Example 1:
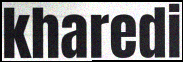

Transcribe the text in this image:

kharedi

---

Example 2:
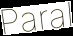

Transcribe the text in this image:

Paral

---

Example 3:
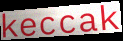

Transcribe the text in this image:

keccak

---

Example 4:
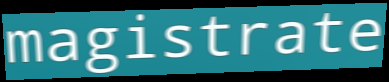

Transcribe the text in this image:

magistrate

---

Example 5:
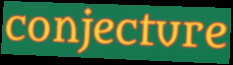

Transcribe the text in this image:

conjecture